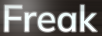
Freak